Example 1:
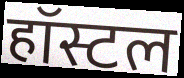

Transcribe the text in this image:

हॉस्टल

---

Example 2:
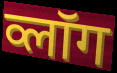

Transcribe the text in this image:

व्लॉग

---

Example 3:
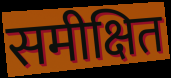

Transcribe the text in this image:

समीक्षित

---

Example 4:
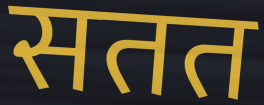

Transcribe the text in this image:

सतत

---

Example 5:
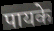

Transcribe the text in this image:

पायके